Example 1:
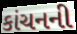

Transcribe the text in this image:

કાંચનની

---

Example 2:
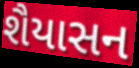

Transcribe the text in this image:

શૈયાસન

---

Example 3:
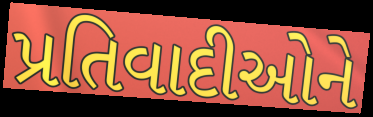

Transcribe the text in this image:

પ્રતિવાદીઓને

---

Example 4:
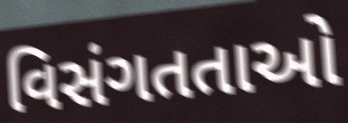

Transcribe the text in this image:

વિસંગતતાઓ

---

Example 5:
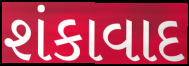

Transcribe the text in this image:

શંકાવાદ